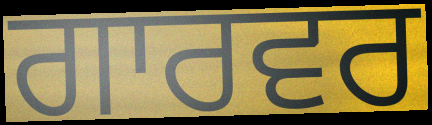
ਗਾਰਵਰ